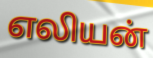
எலியன்